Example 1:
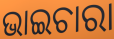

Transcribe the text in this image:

ଭାଇଚାରା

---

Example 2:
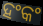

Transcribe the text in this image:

ହଂକଂ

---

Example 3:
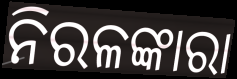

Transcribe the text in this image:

ନିରଳଙ୍କାରା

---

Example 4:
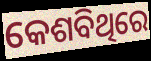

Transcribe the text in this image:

କେଶବିଥିରେ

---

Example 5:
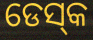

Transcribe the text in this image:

ଡେସ୍‌କ